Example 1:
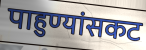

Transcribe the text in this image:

पाहुण्यांसकट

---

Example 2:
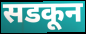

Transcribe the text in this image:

सडकून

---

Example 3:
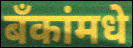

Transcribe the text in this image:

बँकांमधे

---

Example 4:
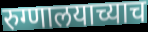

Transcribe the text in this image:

रुग्णालयाच्याच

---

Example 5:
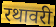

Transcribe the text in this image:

रथावरी